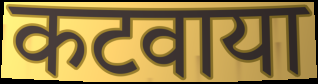
कटवाया